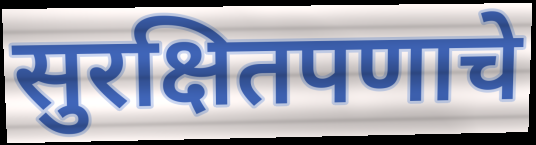
सुरक्षितपणाचे